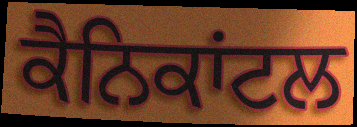
ਕੈਨਿਕਾਂਟਲ